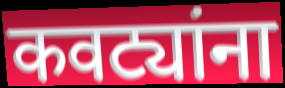
कवट्यांना